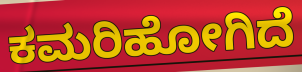
ಕಮರಿಹೋಗಿದೆ